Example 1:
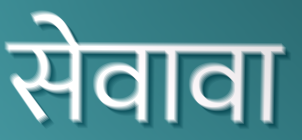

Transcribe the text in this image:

सेवावा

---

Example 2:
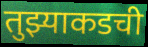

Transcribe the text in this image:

तुझ्याकडची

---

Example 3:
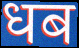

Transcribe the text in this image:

धब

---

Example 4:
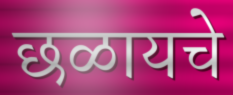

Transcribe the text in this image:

छळायचे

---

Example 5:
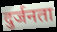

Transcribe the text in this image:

दुर्जनता